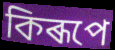
কিৰূপে